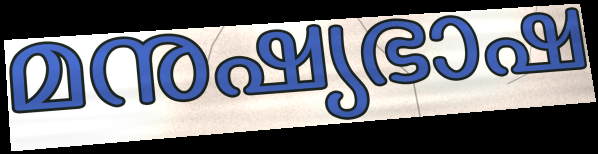
മനുഷ്യഭാഷ